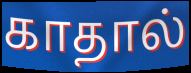
காதால்